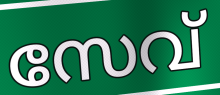
സേവ്